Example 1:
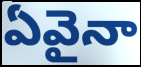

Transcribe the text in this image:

ఏవైనా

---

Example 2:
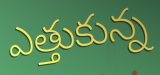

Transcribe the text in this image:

ఎత్తుకున్న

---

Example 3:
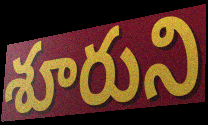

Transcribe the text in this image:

శూరుని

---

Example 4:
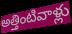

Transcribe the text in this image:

అత్తింటివాళ్లు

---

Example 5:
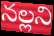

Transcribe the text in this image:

నల్లని